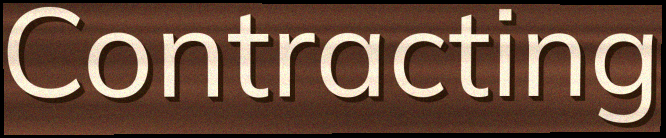
Contracting